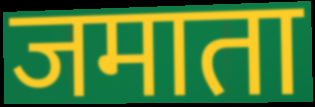
जमाता